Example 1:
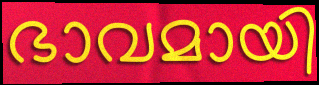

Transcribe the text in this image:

ഭാവമായി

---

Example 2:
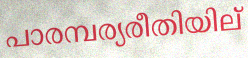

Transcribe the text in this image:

പാരമ്പര്യരീതിയില്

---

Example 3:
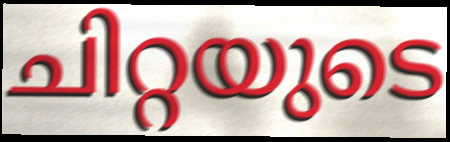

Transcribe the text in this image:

ചിറ്റയുടെ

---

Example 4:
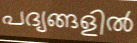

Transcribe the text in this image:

പദ്യങ്ങളിൽ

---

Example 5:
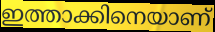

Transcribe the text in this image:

ഇത്താക്കിനെയാണ്